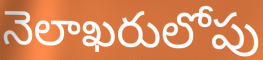
నెలాఖరులోపు